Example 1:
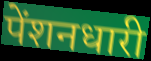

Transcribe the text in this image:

पेंशनधारी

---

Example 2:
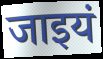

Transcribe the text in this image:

जाइयं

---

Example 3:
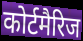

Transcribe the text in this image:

कोर्टमैरिज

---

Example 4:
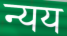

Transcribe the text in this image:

न्यय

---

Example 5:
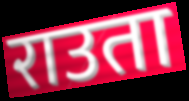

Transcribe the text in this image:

राउता